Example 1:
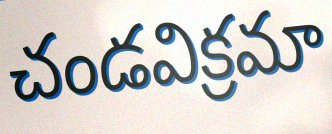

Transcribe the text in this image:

చండవిక్రమా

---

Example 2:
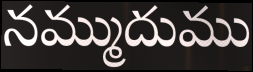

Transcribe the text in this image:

నమ్ముదుము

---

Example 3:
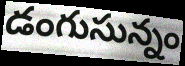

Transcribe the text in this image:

డంగుసున్నం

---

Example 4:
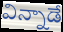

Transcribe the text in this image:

విన్నాడే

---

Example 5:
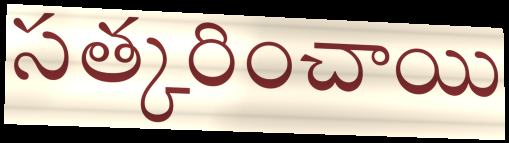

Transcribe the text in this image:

సత్కరించాయి